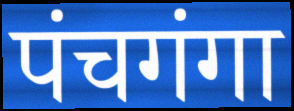
पंचगंगा